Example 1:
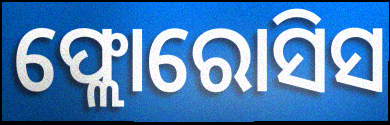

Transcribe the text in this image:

ଫ୍ଲୋରୋସିସ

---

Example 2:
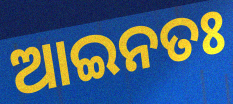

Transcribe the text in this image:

ଆଇନତଃ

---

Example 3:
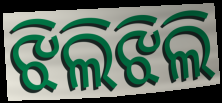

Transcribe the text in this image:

ଝିଲିଝିଲି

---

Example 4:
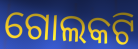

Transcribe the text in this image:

ଗୋଲକଟି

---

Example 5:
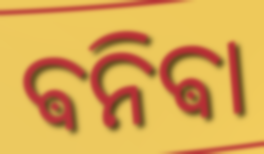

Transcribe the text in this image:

ଵନିଵା